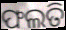
ଫଲତି